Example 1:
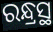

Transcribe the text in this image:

ରନ୍ଧ୍ରସ୍ଥ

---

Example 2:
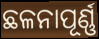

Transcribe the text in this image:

ଛଳନାପୂର୍ଣ୍ଣ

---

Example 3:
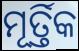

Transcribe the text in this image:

ମୂର୍ତ୍ତିକ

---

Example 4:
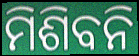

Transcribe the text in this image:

ମିଶିବନି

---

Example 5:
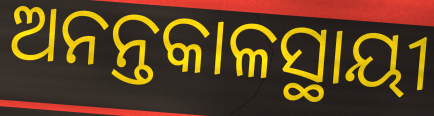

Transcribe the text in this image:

ଅନନ୍ତକାଳସ୍ଥାୟୀ